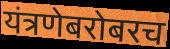
यंत्रणेबरोबरच